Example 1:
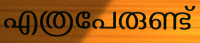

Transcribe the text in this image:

എത്രപേരുണ്ട്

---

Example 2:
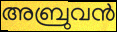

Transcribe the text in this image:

അബ്രുവൻ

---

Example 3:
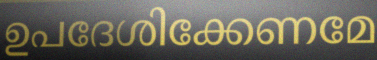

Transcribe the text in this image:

ഉപദേശിക്കേണമേ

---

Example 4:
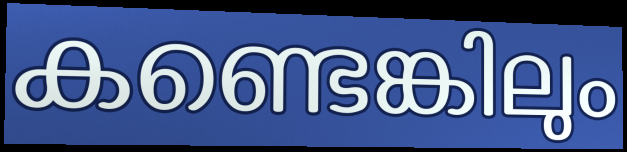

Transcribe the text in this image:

കണ്ടെങ്കിലും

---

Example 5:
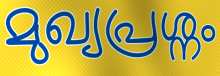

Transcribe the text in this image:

മുഖ്യപ്രശ്നം